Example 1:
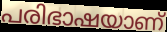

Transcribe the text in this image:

പരിഭാഷയാണ്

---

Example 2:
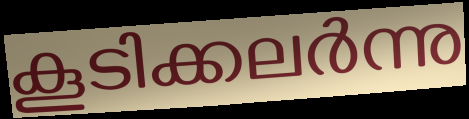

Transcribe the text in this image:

കൂടിക്കലർന്നു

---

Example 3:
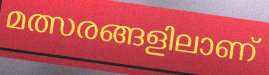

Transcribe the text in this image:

മത്സരങ്ങളിലാണ്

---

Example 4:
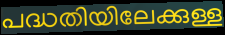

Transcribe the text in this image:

പദ്ധതിയിലേക്കുള്ള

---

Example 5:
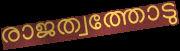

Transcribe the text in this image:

രാജത്വത്തോടു